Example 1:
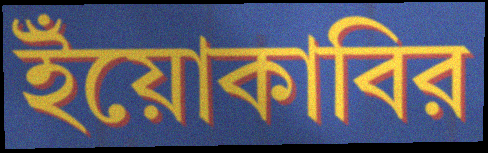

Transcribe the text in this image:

ইঁয়োকাবির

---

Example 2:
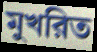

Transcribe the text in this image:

মুখরিত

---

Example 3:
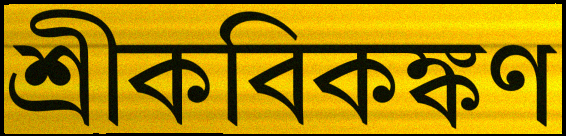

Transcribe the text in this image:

শ্রীকবিকঙ্কণ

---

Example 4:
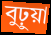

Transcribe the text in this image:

বুঢ়ুয়া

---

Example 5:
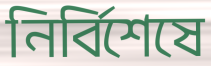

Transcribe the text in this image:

নির্বিশেষে